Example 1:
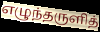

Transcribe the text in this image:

எழுந்தருளித்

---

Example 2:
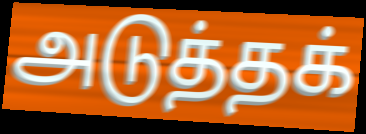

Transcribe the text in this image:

அடுத்தக்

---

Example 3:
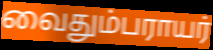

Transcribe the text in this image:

வைதும்பராயர்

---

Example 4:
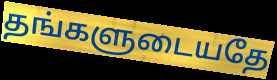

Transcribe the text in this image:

தங்களுடையதே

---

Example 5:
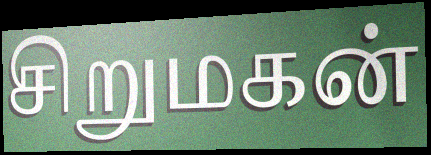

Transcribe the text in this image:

சிறுமகன்